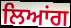
ਲਿਆਂਗ